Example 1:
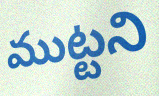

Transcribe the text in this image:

ముట్టని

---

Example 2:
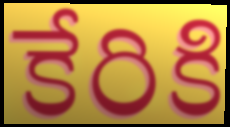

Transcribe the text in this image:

కేరికి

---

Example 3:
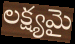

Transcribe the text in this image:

లక్ష్యమై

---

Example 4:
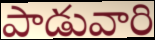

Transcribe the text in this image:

పాడువారి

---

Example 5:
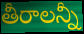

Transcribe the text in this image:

తీరాలన్నీ